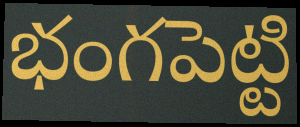
భంగపెట్టి